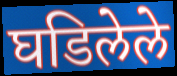
घडिलेले